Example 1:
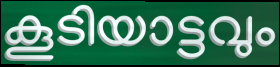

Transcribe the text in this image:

കൂടിയാട്ടവും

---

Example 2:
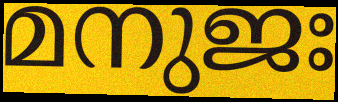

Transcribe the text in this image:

മനുജഃ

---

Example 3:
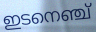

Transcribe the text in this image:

ഇടനെഞ്ച്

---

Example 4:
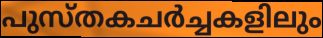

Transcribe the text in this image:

പുസ്തകചർച്ചകളിലും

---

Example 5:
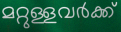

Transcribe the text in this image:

മറ്റുള്ളവർക്ക്